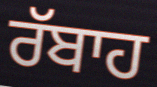
ਰੱਬਾਹ